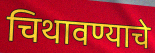
चिथावण्याचे